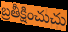
బ్రతీక్షించుచు